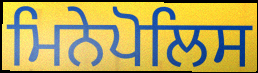
ਮਿਨੇਪੋਲਿਸ